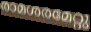
രാമശരമേറ്റു